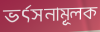
ভর্ৎসনামূলক